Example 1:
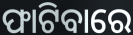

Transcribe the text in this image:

ଫାଟିବାରେ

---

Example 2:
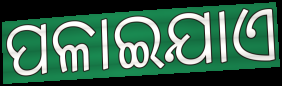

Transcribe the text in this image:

ପଳାଇଯାଏ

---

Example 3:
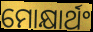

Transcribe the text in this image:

ମୋକ୍ଷାର୍ଥଂ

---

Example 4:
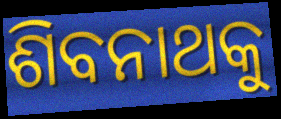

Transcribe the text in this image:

ଶିବନାଥକୁ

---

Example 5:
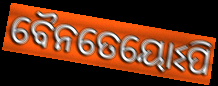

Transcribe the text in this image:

ବୈନତେୟୋଽପି